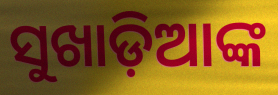
ସୁଖାଡ଼ିଆଙ୍କ